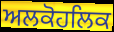
ਅਲਕੋਹਲਿਕ